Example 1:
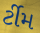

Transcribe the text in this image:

ર્ટીમ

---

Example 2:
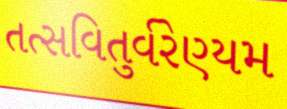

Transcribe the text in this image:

તત્સવિતુર્વરેણ્યમ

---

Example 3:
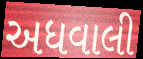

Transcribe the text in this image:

અધવાલી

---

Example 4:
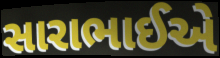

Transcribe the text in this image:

સારાભાઈએ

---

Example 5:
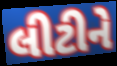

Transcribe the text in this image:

લીટીને